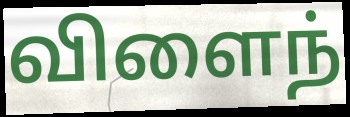
விளைந்